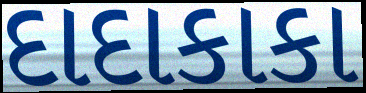
દાદાકાકા